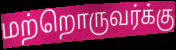
மற்றொருவர்க்கு